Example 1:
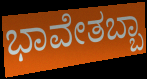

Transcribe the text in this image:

ಭಾವೇತಬ್ಬಾ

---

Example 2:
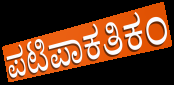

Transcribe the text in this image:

ಪಟಿಪಾಕತಿಕಂ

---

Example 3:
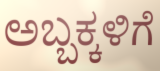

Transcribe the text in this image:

ಅಬ್ಬಕ್ಕಳಿಗೆ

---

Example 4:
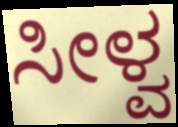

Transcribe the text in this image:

ಸೀಳ್ವ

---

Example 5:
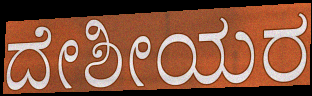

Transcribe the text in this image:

ದೇಶೀಯರ